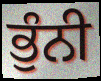
ਭੁੰਨੀ